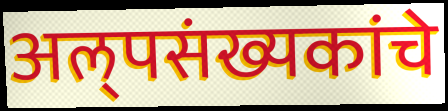
अल्पसंख्यकांचे